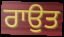
ਰਾਉਤ